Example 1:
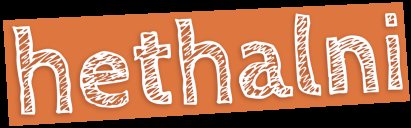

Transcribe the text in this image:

hethalni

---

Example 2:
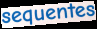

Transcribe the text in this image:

sequentes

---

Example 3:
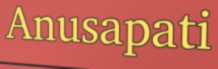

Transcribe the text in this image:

Anusapati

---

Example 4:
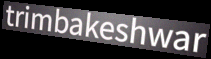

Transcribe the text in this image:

trimbakeshwar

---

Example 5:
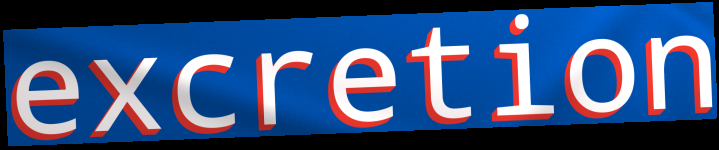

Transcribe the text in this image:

excretion